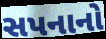
સપનાનો